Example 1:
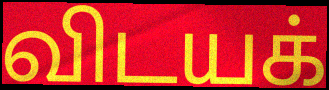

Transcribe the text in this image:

விடயக்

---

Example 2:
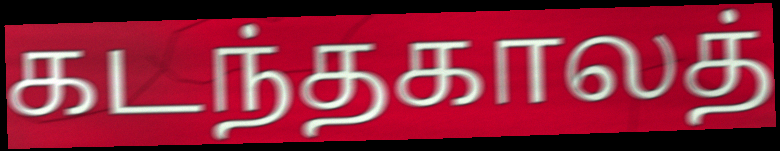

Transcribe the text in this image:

கடந்தகாலத்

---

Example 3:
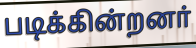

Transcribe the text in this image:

படிக்கின்றனர்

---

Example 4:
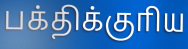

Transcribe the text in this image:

பக்திக்குரிய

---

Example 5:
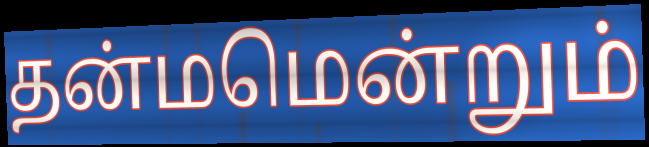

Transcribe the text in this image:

தன்மமென்றும்